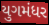
યુગમંધર